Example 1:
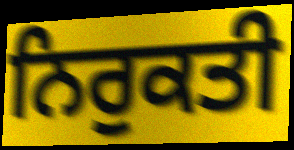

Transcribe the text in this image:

ਨਿਰੁਕਤੀ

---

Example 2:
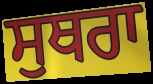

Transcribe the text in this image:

ਸੁਥਰਾ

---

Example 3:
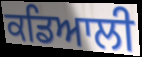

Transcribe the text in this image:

ਕਡਿਆਲੀ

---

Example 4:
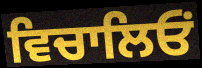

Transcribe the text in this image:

ਵਿਚਾਲਿਓਂ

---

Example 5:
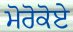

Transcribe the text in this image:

ਮੋਰੋਕੋਏ